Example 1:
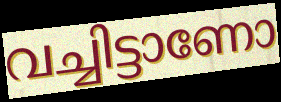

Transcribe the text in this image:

വച്ചിട്ടാണോ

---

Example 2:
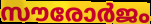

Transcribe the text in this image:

സൗരോർജം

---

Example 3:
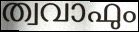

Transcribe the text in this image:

ത്വവാഫും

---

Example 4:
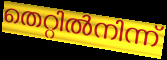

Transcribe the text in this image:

തെറ്റിൽനിന്ന്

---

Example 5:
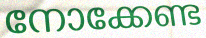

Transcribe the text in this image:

നോക്കേണ്ട